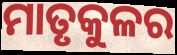
ମାତୃକୁଳର